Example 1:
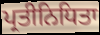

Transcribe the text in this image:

ਪ੍ਰਤੀਨਿਧਿਤਾ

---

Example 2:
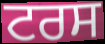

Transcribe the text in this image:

ਟਰਸ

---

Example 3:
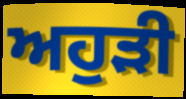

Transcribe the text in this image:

ਅਹੁੜੀ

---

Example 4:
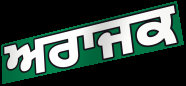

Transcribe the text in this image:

ਅਰਾਜਕ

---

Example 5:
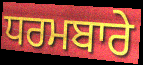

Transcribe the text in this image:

ਧਰਮਬਾਰੇ